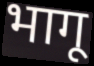
भागू